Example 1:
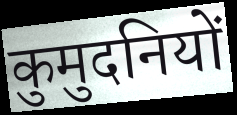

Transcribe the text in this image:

कुमुदनियों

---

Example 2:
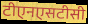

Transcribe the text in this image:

टीएनएसटीसी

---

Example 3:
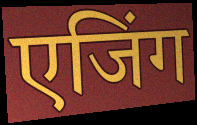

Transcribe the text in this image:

एजिंग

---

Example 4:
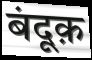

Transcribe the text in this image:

बंदूक़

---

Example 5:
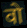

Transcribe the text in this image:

वो